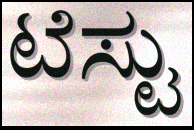
ಟೆಸ್ಟು